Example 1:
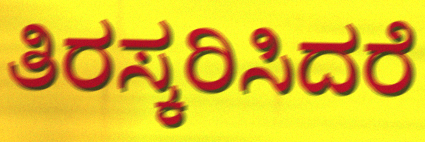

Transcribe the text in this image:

ತಿರಸ್ಕರಿಸಿದರೆ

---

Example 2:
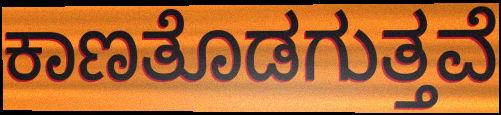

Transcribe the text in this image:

ಕಾಣತೊಡಗುತ್ತವೆ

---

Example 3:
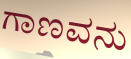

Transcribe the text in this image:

ಗಾಣವನು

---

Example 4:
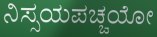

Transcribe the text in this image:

ನಿಸ್ಸಯಪಚ್ಚಯೋ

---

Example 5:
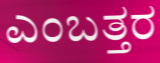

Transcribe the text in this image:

ಎಂಬತ್ತರ